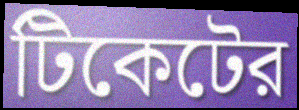
টিকেটের